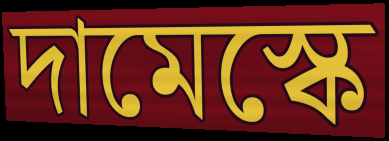
দামেস্কে